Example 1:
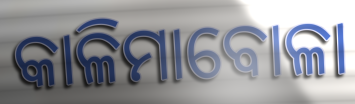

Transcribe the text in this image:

କାଳିମାବୋଳା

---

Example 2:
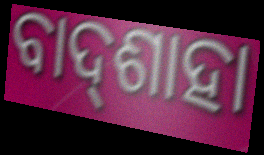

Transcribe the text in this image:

ବାଦ୍‌ଶାହା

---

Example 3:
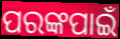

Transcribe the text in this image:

ପରଙ୍କପାଇଁ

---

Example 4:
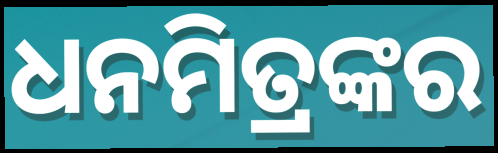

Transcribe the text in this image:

ଧନମିତ୍ରଙ୍କର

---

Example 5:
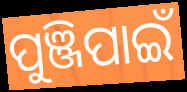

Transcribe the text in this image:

ପୁଞ୍ଜିପାଇଁ